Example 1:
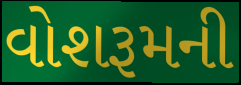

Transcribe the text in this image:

વોશરૂમની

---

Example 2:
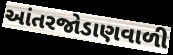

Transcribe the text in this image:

આંતરજોડાણવાળી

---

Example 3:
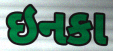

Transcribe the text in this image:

ઇનકા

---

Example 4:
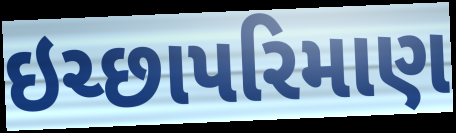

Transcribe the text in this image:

ઇચ્છાપરિમાણ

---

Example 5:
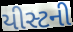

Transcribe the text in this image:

યીસ્ટની